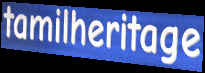
tamilheritage